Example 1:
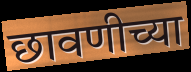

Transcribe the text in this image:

छावणीच्या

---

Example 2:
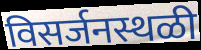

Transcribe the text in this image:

विसर्जनस्थळी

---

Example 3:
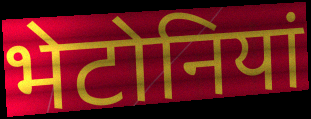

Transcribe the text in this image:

भेटोनियां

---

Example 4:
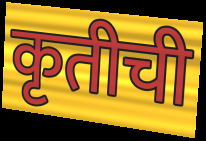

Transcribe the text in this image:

कृतीची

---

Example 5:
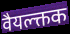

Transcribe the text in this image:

वैयल्क्तक